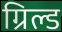
ग्रिल्ड